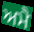
ਅਮੈ